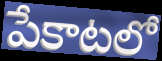
పేకాటలో